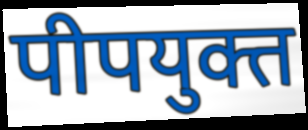
पीपयुक्त